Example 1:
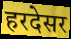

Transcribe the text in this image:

हरदेसर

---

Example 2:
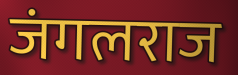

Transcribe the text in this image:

जंगलराज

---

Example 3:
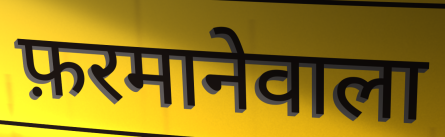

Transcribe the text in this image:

फ़रमानेवाला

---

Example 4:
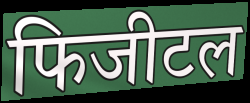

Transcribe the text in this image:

फिजीटल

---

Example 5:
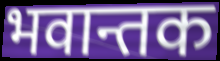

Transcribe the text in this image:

भवान्तक